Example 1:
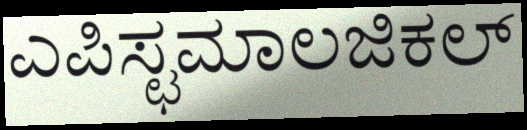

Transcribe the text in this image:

ಎಪಿಸ್ಟಮಾಲಜಿಕಲ್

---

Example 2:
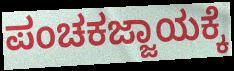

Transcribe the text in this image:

ಪಂಚಕಜ್ಜಾಯಕ್ಕೆ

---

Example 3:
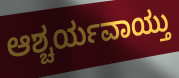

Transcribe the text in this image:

ಆಶ್ಚರ್ಯವಾಯ್ತು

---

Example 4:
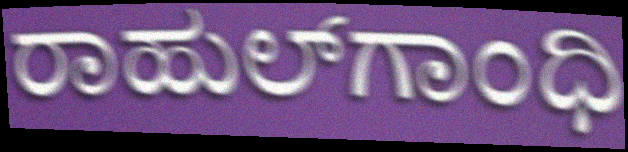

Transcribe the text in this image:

ರಾಹುಲ್‌ಗಾಂಧಿ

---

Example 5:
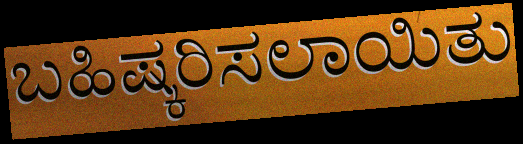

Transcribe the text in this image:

ಬಹಿಷ್ಕರಿಸಲಾಯಿತು